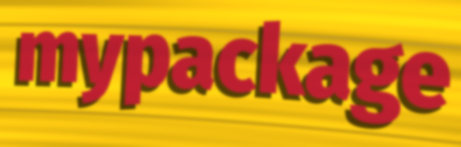
mypackage